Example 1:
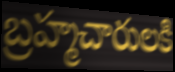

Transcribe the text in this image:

బ్రహ్మచారులకి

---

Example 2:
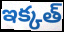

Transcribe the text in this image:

ఇక్కత్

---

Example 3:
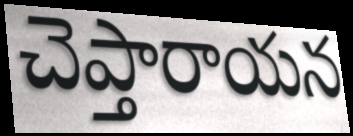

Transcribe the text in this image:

చెప్తారాయన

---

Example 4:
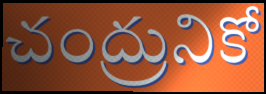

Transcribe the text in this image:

చంద్రునికో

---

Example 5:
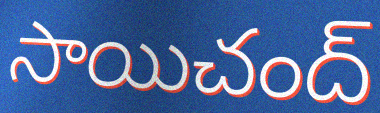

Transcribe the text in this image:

సాయిచంద్